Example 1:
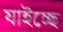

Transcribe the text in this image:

যাইচ্ছে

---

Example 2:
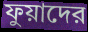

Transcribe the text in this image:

ফুয়াদের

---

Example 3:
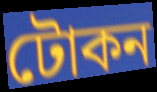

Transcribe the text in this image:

টোকন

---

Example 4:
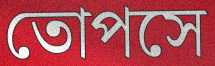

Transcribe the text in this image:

তোপসে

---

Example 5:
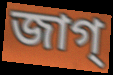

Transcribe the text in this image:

জাগ্